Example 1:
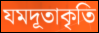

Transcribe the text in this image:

যমদূতাকৃতি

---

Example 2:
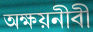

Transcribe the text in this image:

অক্ষয়নীবী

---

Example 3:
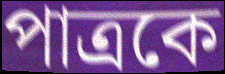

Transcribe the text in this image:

পাত্রকে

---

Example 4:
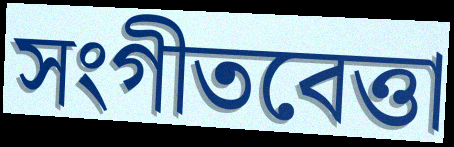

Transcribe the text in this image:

সংগীতবেত্তা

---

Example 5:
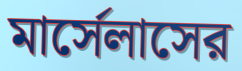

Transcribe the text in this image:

মার্সেলাসের